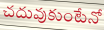
చదువుకుంటేనో